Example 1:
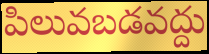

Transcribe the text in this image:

పిలువబడవద్దు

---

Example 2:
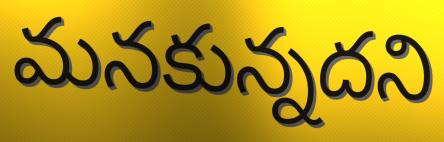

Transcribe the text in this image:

మనకున్నదని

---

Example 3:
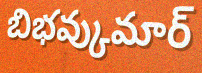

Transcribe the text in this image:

బిభవ్కుమార్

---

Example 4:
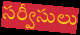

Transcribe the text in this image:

సర్వీసులు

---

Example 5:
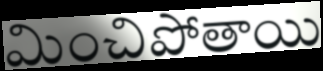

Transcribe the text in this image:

మించిపోతాయి